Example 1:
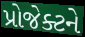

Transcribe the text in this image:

પ્રોજેક્ટને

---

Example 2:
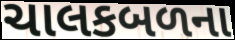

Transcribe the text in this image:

ચાલકબળના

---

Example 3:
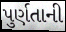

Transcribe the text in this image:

પુર્ણતાની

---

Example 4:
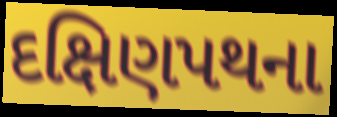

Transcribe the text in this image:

દક્ષિણપથના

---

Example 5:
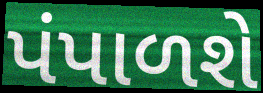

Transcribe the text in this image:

પંપાળશે